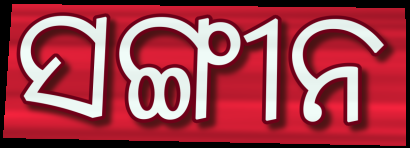
ସଙ୍ଗୀନ